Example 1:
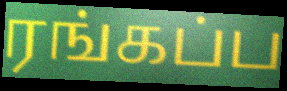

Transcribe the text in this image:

ரங்கப்ப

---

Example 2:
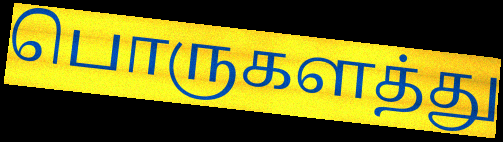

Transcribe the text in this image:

பொருகளத்து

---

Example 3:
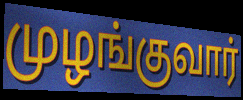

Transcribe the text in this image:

முழங்குவார்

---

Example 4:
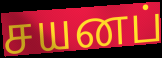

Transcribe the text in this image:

சயனப்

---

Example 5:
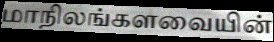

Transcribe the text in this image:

மாநிலங்களவையின்